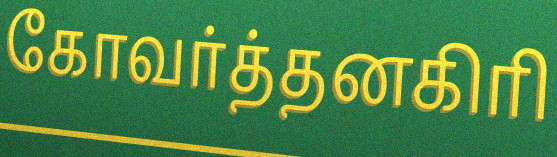
கோவர்த்தனகிரி